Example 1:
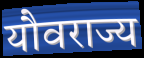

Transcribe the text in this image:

यौवराज्य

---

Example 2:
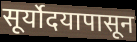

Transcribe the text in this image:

सूर्योदयापासून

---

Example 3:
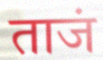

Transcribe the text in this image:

ताजं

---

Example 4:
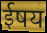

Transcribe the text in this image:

ईषय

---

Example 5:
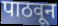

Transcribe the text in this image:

पाठवून